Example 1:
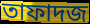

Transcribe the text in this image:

তাফাদজ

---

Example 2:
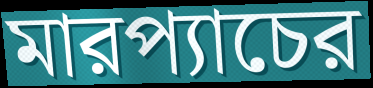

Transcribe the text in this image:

মারপ্যাচের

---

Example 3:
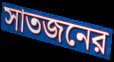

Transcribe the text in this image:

সাতজনের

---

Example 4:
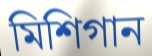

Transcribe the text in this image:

মিশিগান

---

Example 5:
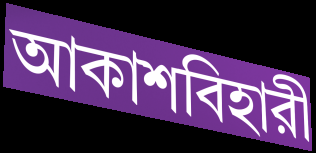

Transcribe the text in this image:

আকাশবিহারী